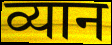
व्यान